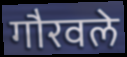
गौरवले